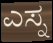
ಎಸ್ನ